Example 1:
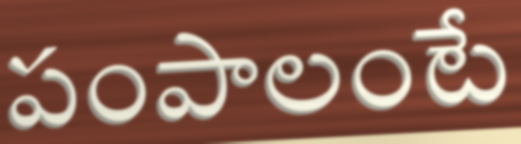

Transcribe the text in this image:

పంపాలంటే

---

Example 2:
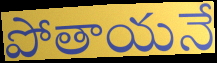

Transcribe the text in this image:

పోతాయనే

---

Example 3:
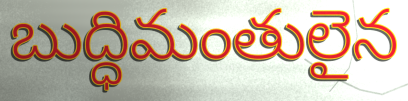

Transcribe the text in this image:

బుద్ధిమంతులైన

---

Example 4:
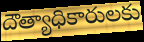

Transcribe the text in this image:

దౌత్యాధికారులకు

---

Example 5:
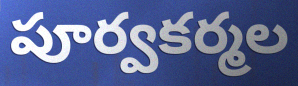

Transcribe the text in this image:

పూర్వకర్మల